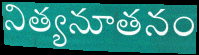
నిత్యనూతనం